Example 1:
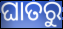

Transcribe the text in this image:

ଘାତରୁ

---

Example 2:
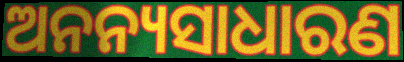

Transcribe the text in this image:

ଅନନ୍ୟସାଧାରଣ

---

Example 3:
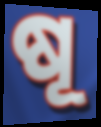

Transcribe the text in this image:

ଷୂ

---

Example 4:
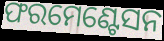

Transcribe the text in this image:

ଫରମେଣ୍ଟେସନ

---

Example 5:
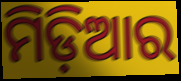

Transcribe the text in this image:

ମିଡ଼ିଆର